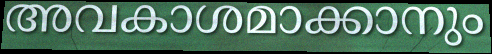
അവകാശമാക്കാനും